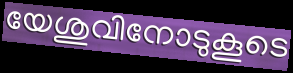
യേശുവിനോടുകൂടെ